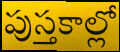
పుస్తకాల్లో